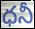
ధనీ